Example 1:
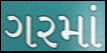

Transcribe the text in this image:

ગરમાં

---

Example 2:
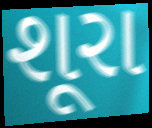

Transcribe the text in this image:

શૂરા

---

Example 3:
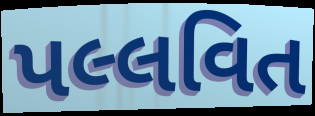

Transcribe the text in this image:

પલ્લવિત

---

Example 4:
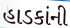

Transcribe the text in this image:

હાડકાંની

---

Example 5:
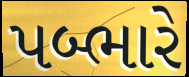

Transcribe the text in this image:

પબ્ભારે